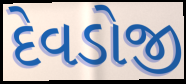
દેવડોજી